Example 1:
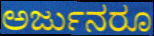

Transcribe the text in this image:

ಅರ್ಜುನರೂ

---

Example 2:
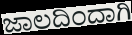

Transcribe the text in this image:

ಜಾಲದಿಂದಾಗಿ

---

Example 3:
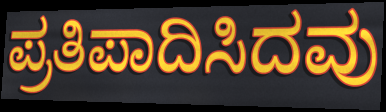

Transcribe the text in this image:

ಪ್ರತಿಪಾದಿಸಿದವು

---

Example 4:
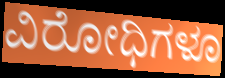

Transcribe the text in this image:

ವಿರೋಧಿಗಳೂ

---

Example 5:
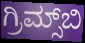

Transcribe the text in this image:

ಗ್ರಿಮ್ಸ್‌ಬಿ